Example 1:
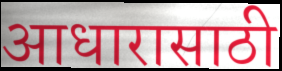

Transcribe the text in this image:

आधारासाठी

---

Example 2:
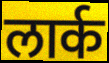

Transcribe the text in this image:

लार्क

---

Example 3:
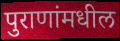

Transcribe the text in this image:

पुराणांमधील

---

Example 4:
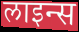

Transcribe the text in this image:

लाइन्स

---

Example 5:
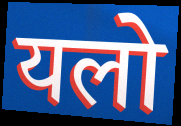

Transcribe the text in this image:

यलो